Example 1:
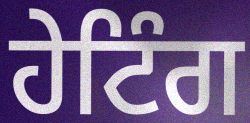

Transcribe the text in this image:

ਹੇਟਿੰਗ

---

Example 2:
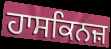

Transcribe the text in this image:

ਹਾਸਕਿਨਜ਼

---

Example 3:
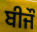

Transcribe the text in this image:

ਬੀਜੌ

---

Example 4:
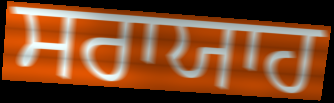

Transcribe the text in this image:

ਸਰਾਯਾਹ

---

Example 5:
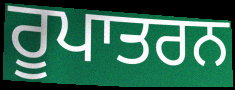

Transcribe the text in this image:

ਰੂਪਾਤਰਨ